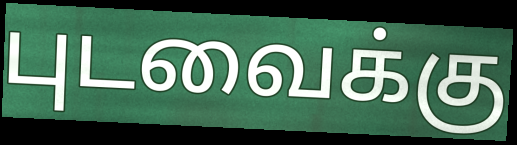
புடவைக்கு